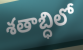
శతాబ్ధిలో